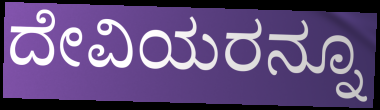
ದೇವಿಯರನ್ನೂ